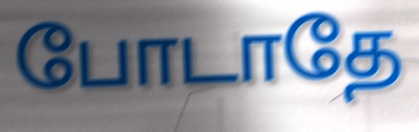
போடாதே